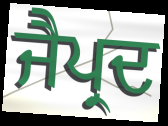
ਜੈਪ੍ਰਦ